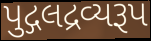
પુદ્ગલદ્રવ્યરૂપ